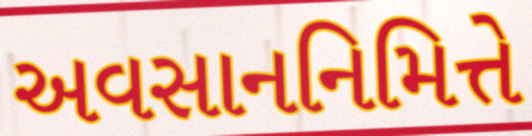
અવસાનનિમિત્તે